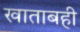
खाताबही